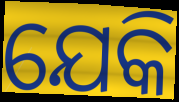
ଯେକି